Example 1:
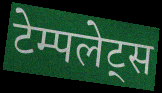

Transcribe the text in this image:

टेम्पलेट्स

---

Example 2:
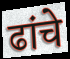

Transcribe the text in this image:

ढांचे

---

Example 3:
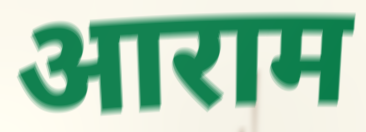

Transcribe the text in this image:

आराम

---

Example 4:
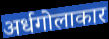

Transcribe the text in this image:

अर्धगोलाकार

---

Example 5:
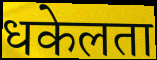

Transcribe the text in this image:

धकेलता